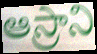
ఆస్రాని